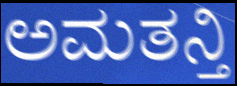
ಅಮತನ್ತಿ